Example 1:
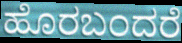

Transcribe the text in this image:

ಹೊರಬಂದರೆ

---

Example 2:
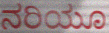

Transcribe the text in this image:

ನರಿಯೂ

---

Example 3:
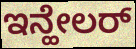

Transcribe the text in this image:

ಇನ್ಹೇಲರ್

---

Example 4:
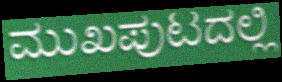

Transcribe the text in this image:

ಮುಖಪುಟದಲ್ಲಿ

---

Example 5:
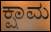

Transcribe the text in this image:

ಕ್ಷಾಮ